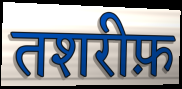
तशरीफ़